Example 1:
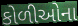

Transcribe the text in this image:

કોળીઓના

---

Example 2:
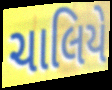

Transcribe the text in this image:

ચાલિયે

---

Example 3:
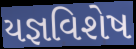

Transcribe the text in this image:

યજ્ઞવિશેષ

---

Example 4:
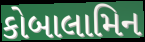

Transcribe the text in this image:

કોબાલામિન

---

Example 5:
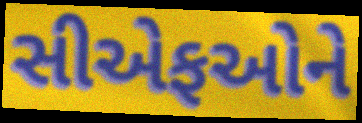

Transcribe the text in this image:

સીએફઓને